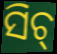
ସିଚ୍